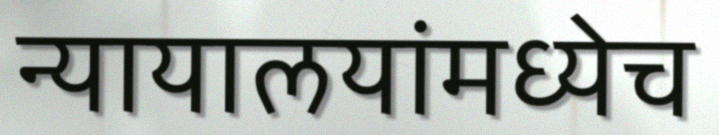
न्यायालयांमध्येच